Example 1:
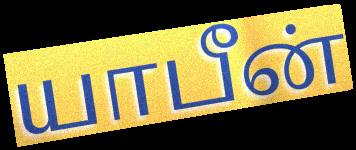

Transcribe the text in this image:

யாபீன்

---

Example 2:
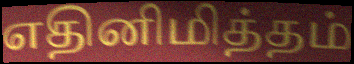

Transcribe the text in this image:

எதினிமித்தம்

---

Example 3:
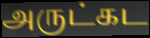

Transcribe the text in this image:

அருட்கட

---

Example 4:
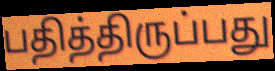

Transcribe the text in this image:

பதித்திருப்பது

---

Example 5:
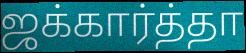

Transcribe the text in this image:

ஜக்கார்த்தா